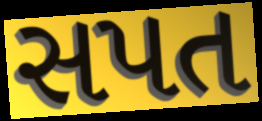
સપત